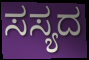
ಸಸ್ಯದ